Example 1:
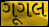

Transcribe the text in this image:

ગૂગલ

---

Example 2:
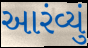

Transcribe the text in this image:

આરંવ્યું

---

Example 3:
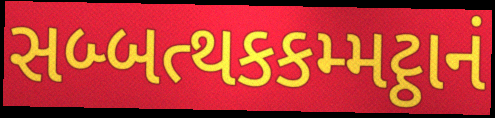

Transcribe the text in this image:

સબ્બત્થકકમ્મટ્ઠાનં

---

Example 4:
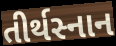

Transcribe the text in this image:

તીર્થસ્નાન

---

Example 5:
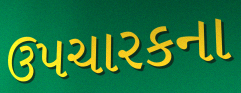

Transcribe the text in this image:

ઉપચારકના